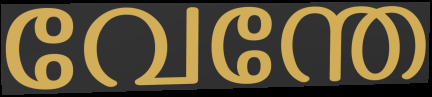
വേന്തേ